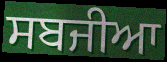
ਸਬਜੀਆ